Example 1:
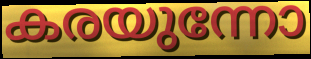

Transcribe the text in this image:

കരയുന്നോ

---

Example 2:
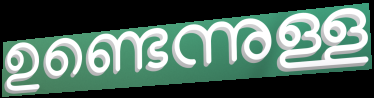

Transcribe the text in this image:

ഉണ്ടെന്നുള്ള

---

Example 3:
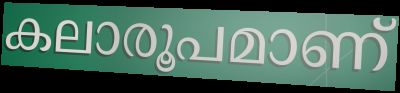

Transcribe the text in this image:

കലാരൂപമാണ്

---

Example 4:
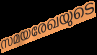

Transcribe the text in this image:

സമയരേഖയുടെ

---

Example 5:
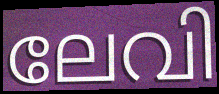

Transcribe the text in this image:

ലേവി